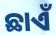
ଛାଏଁ